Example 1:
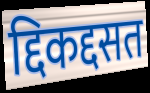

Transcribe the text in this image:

द्दिकद्दसत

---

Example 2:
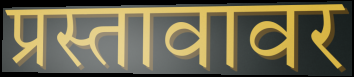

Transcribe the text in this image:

प्रस्तावावर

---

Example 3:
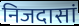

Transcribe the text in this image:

निजदासां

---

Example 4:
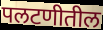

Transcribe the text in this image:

पलटणीतील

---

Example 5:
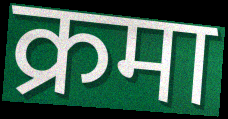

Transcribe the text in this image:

क्रमा